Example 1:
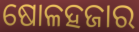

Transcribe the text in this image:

ଷୋଳହଜାର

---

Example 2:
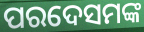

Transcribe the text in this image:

ପରଦେସମଙ୍କ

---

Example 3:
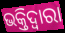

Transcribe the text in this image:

ଭକ୍ତିଦ୍ଵାରା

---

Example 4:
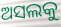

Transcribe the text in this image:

ଅସଲକୁ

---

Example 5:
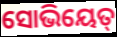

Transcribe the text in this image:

ସୋଭିୟେତ୍